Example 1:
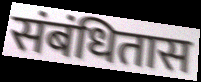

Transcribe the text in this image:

संबंधितास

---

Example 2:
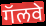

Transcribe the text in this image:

गॅलवे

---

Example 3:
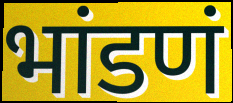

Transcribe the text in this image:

भांडणं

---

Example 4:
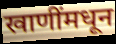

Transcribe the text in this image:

खाणींमधून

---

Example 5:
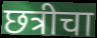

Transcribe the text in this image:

छत्रीचा